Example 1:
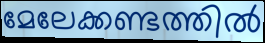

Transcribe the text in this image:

മേലേക്കണ്ടത്തിൽ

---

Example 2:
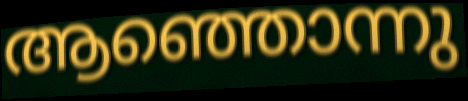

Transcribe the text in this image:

ആഞ്ഞൊന്നു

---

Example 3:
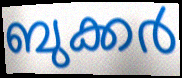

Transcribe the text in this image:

ബുക്കർ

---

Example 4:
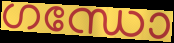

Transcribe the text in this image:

ഗന്ധോ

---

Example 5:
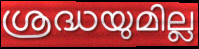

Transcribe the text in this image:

ശ്രദ്ധയുമില്ല